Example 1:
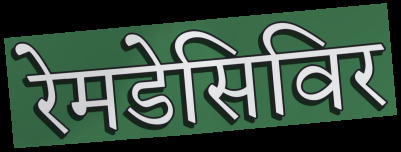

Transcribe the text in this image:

रेमडेसिविर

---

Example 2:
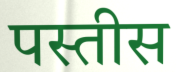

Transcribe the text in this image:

पस्तीस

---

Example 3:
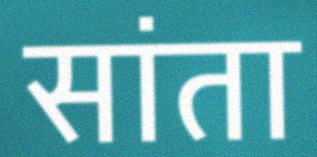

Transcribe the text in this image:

सांता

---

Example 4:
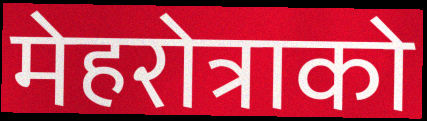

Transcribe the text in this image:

मेहरोत्राको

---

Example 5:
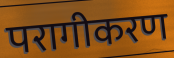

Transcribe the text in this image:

परागीकरण